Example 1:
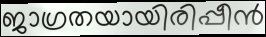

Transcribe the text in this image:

ജാഗ്രതയായിരിപ്പീൻ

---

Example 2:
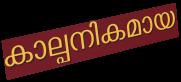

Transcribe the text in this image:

കാല്പനികമായ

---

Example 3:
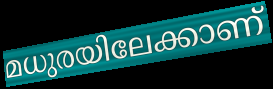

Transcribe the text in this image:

മധുരയിലേക്കാണ്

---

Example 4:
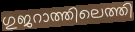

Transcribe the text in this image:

ഗുജറാത്തിലെത്തി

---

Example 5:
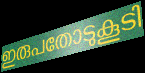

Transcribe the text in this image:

ഇരുപതോടുകൂടി